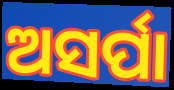
ଅସର୍ପା